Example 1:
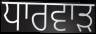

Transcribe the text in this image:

ਧਾਰਵਾੜ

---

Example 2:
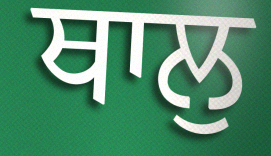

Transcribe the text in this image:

ਥਾਲੁ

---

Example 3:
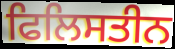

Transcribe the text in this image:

ਫਿਲਿਸਤੀਨ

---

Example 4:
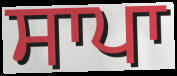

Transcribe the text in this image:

ਸਾਪਾ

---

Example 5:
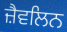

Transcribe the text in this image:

ਜ਼ੈਵਲਿਨ